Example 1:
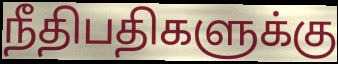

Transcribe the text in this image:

நீதிபதிகளுக்கு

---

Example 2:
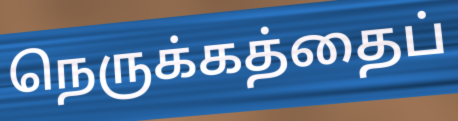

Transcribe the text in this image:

நெருக்கத்தைப்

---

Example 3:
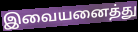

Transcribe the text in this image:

இவையனைத்து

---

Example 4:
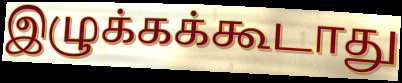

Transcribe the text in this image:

இழுக்கக்கூடாது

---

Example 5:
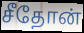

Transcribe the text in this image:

சீதோன்